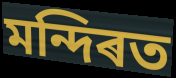
মন্দিৰত